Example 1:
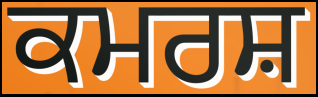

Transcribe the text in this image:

ਕਮਰਸ਼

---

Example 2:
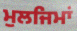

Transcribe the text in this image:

ਮੁਲਜਿਮਾਂ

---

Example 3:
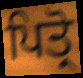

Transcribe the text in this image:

ਪਿਤ੍ਰੋ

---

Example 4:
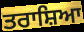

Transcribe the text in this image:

ਤਰਾਸ਼ਿਆ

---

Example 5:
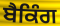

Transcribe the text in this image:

ਬੈਕਿੰਗ